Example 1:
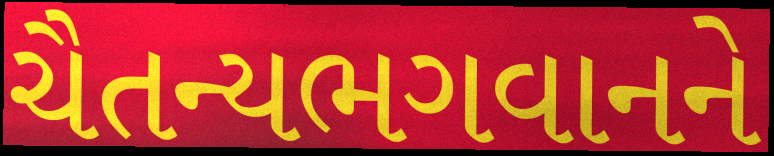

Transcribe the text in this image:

ચૈતન્યભગવાનને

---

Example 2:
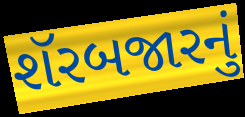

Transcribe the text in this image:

શૅરબજારનું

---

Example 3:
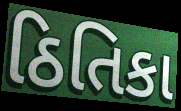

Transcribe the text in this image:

ઠિતિકા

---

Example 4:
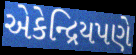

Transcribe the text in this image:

એકેન્દ્રિયપણે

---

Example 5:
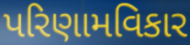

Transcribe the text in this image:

પરિણામવિકાર